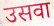
उसवा